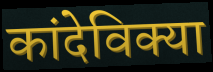
कांदेविक्या